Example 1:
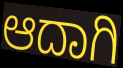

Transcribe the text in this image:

ಆದಾಗಿ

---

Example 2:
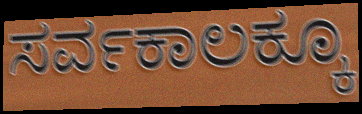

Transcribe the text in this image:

ಸರ್ವಕಾಲಕ್ಕೂ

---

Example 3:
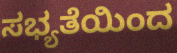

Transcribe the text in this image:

ಸಭ್ಯತೆಯಿಂದ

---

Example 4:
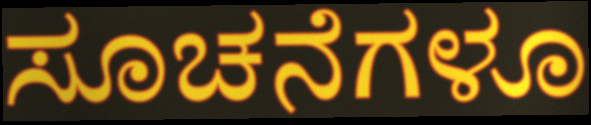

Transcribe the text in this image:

ಸೂಚನೆಗಳೂ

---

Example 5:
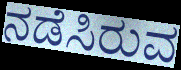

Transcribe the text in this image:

ನಡೆಸಿರುವ